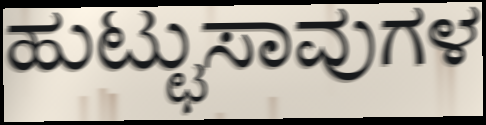
ಹುಟ್ಟುಸಾವುಗಳ